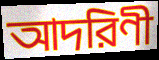
আদরিণী